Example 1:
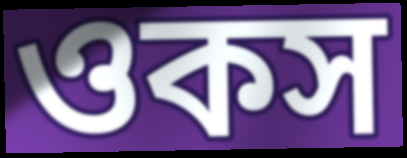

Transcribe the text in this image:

ওকস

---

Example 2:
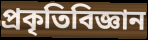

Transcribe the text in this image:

প্রকৃতিবিজ্ঞান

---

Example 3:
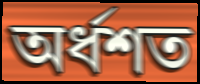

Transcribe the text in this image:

অর্ধশত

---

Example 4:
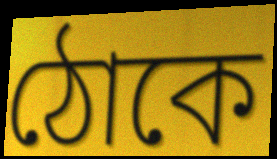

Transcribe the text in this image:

ঠোকে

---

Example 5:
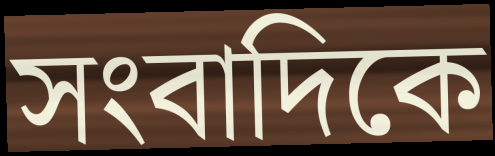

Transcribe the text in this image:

সংবাদিকে